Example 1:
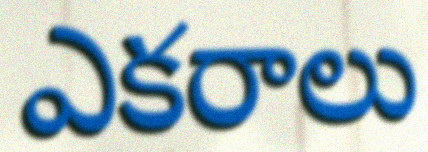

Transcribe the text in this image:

ఎకరాలు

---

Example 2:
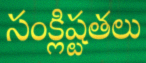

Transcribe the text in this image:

సంక్లిష్టతలు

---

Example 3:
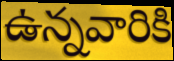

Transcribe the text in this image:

ఉన్నవారికి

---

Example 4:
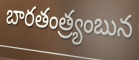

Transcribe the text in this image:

బారతంత్ర్యంబున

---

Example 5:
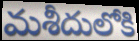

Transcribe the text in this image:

మశీదులోకి